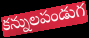
కన్నులపండుగ